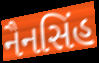
નૈનસિંહ